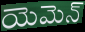
యెమెన్